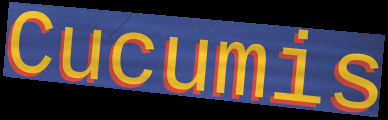
Cucumis